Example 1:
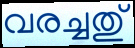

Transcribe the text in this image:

വരച്ചതു്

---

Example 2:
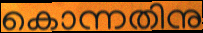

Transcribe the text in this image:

കൊന്നതിനു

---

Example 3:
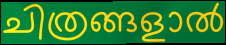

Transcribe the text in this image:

ചിത്രങ്ങളാൽ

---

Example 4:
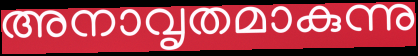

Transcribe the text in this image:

അനാവൃതമാകുന്നു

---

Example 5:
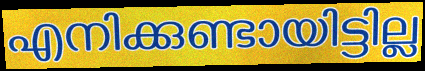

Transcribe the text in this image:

എനിക്കുണ്ടായിട്ടില്ല